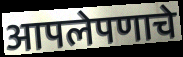
आपलेपणाचे